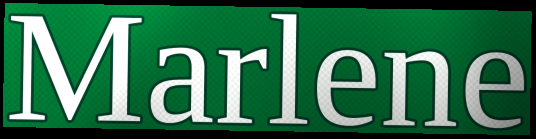
Marlene